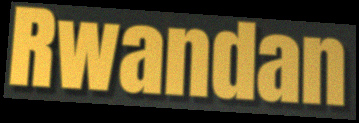
Rwandan